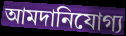
আমদানিযোগ্য